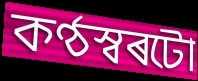
কণ্ঠস্বৰটো